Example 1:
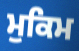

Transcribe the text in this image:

ਮੁਕਿਮ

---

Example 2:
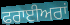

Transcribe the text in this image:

ਫਰਾਈਅਰਾਂ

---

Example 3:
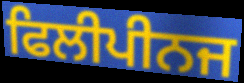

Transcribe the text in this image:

ਫਿਲੀਪੀਨਜ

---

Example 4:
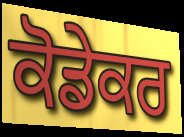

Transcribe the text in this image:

ਕੋਡੇਕਰ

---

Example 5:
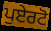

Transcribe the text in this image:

ਪੁਏਰਟੋ